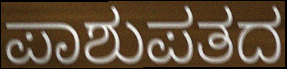
ಪಾಶುಪತದ